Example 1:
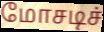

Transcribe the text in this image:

மோசடிச்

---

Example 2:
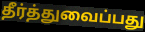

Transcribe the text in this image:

தீர்த்துவைப்பது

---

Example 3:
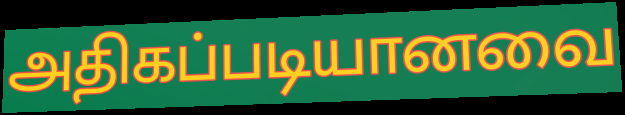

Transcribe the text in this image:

அதிகப்படியானவை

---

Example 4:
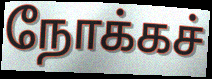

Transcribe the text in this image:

நோக்கச்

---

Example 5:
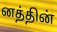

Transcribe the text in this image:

னத்தின்